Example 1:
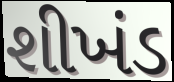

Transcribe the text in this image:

શીખંડ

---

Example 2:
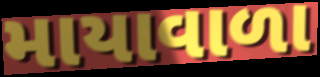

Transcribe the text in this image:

માયાવાળા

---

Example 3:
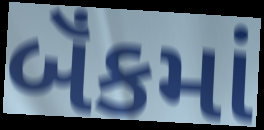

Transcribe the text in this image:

બૅંકમાં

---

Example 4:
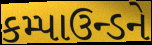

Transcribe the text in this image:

કમ્પાઉન્ડને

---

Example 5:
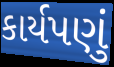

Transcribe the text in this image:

કાર્યપણું